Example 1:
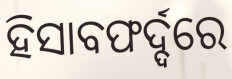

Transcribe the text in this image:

ହିସାବଫର୍ଦ୍ଦରେ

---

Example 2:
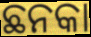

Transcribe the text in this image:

ଛନକା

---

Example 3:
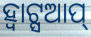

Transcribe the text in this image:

ହ୍ୱାଟ୍ସଆପ୍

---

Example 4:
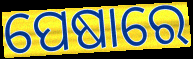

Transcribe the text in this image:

ପେଷାରେ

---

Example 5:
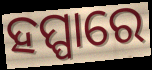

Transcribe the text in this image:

ହପ୍ପାରେ